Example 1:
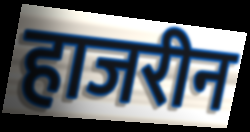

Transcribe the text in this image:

हाजरीन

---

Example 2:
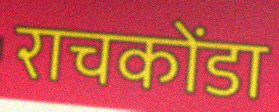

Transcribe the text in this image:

राचकोंडा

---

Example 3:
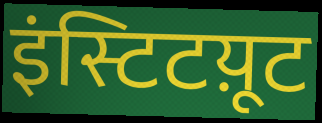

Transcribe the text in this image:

इंस्टिटय़ूट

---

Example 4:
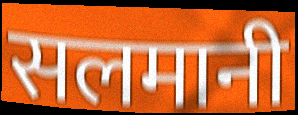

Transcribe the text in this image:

सलमानी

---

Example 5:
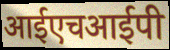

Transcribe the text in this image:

आईएचआईपी